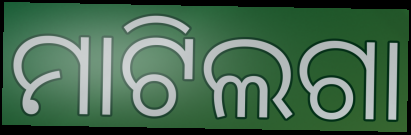
ମାଟିଲଗା